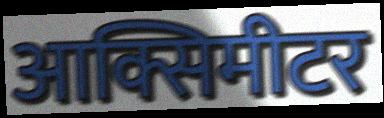
आक्सिमीटर